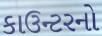
કાઉન્ટરનો